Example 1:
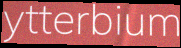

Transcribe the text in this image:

ytterbium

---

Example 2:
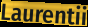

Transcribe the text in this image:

Laurentii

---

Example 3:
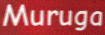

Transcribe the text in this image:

Muruga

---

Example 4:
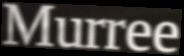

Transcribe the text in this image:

Murree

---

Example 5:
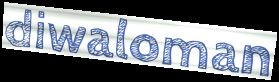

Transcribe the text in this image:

diwaloman